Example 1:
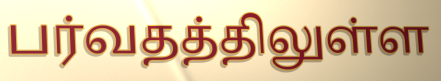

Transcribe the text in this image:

பர்வதத்திலுள்ள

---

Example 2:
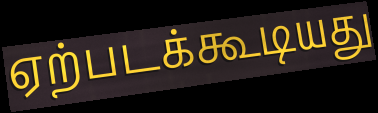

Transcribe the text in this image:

ஏற்படக்கூடியது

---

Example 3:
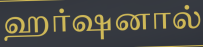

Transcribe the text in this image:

ஹர்ஷனால்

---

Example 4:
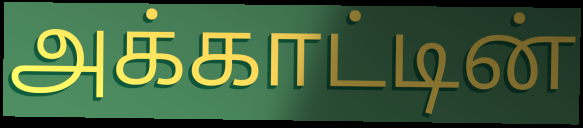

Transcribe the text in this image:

அக்காட்டின்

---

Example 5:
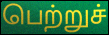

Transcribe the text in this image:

பெற்றுச்